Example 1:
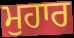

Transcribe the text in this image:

ਮੁਹਾਰ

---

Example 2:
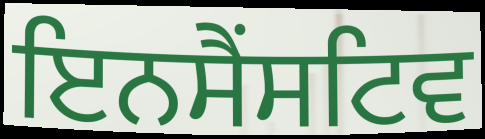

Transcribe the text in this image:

ਇਨਸੈਂਸਟਿਵ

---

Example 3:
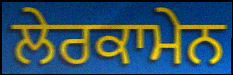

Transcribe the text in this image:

ਲੇਰਕਾਮੇਨ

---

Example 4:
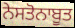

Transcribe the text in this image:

ਨੇਸਤੋਨਾਬੂਤ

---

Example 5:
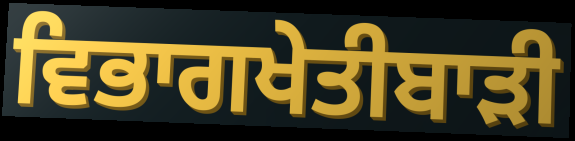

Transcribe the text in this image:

ਵਿਭਾਗਖੇਤੀਬਾੜੀ